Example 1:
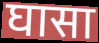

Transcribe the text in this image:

घासा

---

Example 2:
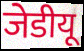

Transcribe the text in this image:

जेडीयू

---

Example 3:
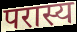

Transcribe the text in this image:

परास्य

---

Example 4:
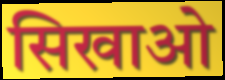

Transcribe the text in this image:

सिखाओ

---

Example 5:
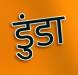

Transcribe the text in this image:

डुंडा